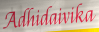
Adhidaivika